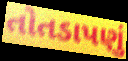
તોતડાપણું